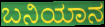
ಬನಿಯಾನ